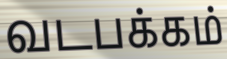
வடபக்கம்